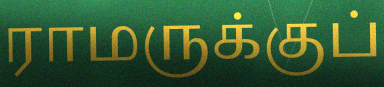
ராமருக்குப்